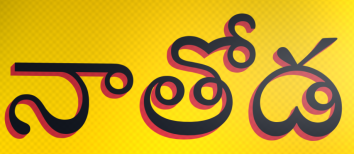
నాతోడ